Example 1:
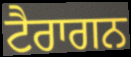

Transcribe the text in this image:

ਟੈਰਾਗਨ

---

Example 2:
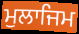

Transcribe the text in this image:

ਮੁਲਾਜਿਮ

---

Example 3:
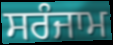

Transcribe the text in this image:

ਸਰੰਜਾਮ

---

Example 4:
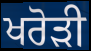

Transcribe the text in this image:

ਖਰੋੜੀ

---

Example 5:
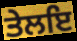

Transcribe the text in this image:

ਤੇਲਇ